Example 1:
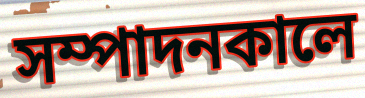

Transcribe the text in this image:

সম্পাদনকালে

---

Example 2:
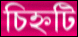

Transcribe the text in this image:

চিহ্নটি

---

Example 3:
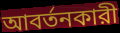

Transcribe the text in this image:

আবর্তনকারী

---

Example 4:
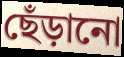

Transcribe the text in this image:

ছেঁড়ানো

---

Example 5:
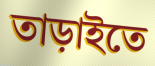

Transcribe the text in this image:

তাড়াইতে